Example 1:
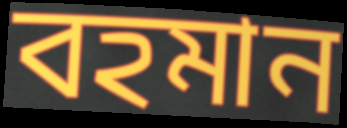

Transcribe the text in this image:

বহমান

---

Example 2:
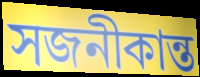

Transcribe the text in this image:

সজনীকান্ত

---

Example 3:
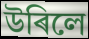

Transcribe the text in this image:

উৰিলে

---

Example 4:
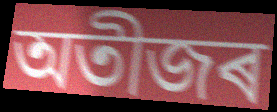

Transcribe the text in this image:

অতীজৰ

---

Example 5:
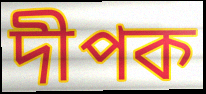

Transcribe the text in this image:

দীপক